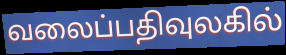
வலைப்பதிவுலகில்